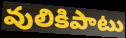
వులికిపాటు